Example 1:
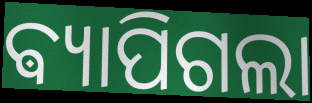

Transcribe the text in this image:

ଵ୍ୟାପିଗଲା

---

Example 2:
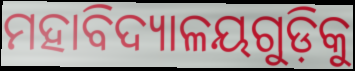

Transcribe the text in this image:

ମହାବିଦ୍ୟାଳୟଗୁଡ଼ିକୁ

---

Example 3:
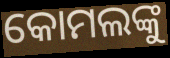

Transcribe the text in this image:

କୋମଲଙ୍କୁ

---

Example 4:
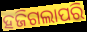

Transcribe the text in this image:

ହଜିଗଲାପରି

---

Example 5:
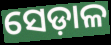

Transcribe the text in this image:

ସେଡ଼ାଳ